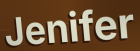
Jenifer